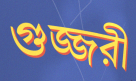
গুজ্জরী